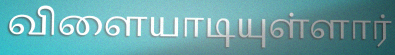
விளையாடியுள்ளார்